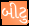
બીટુ